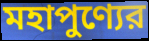
মহাপুণ্যের